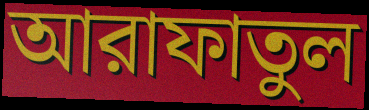
আরাফাতুল